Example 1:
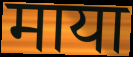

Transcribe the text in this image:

माया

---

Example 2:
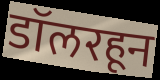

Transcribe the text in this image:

डॉलरहून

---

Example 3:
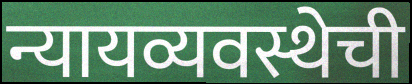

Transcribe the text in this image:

न्यायव्यवस्थेची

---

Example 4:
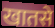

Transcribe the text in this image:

खातसे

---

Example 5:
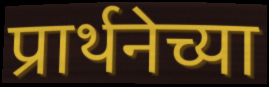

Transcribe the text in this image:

प्रार्थनेच्या